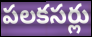
పలకసర్లు